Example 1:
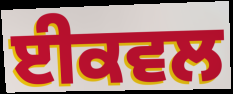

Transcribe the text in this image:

ਈਕਵਲ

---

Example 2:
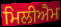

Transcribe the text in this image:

ਮਿਲੀਐਮ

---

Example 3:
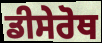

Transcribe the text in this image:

ਡੀਸੇਰੋਥ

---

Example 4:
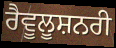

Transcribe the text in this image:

ਰੈਵੂਲੂਸ਼ਨਰੀ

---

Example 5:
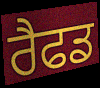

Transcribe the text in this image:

ਰੈਫਡ